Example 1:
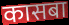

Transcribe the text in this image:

कासबा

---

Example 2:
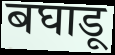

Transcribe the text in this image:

बघाडू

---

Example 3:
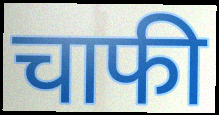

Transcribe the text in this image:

चाफी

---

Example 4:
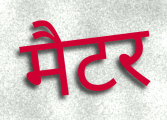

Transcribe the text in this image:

मैटर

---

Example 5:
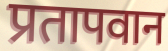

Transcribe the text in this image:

प्रतापवान